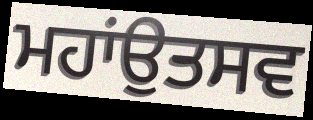
ਮਹਾਂਉਤਸਵ